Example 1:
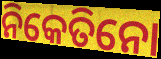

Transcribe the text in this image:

ନିକେତିନୋ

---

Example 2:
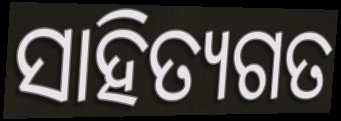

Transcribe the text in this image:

ସାହିତ୍ୟଗତ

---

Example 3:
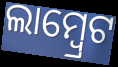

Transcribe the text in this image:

ଲାମ୍ୱ୍ରେଟ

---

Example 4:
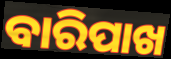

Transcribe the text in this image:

ବାରିପାଖ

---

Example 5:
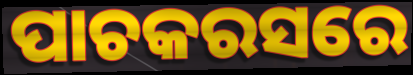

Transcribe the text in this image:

ପାଚକରସରେ